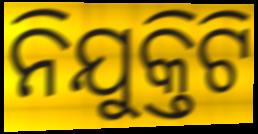
ନିଯୁକ୍ତିଟି